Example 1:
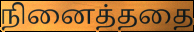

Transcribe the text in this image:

நினைத்ததை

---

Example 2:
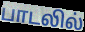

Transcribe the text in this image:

பாடலில்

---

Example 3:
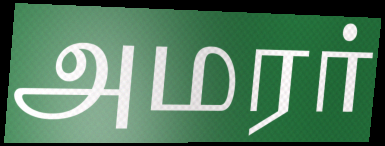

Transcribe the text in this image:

அமரர்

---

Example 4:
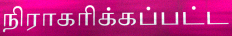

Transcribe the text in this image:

நிராகரிக்கப்பட்ட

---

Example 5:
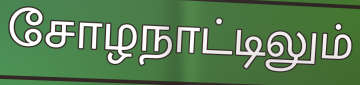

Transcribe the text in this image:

சோழநாட்டிலும்